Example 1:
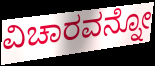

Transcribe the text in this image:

ವಿಚಾರವನ್ನೋ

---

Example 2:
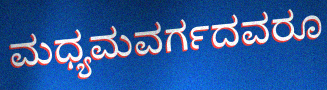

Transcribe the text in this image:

ಮಧ್ಯಮವರ್ಗದವರೂ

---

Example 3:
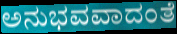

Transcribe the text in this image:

ಅನುಭವವಾದಂತೆ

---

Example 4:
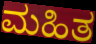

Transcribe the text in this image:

ಮಹಿತ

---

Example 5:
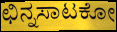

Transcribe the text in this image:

ಛಿನ್ನಸಾಟಕೋ